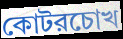
কোটরচোখ